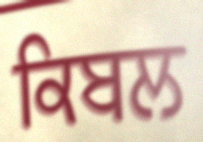
ਕਿਬਲ